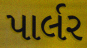
પાર્લર